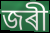
জৰী